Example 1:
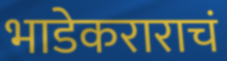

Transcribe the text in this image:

भाडेकराराचं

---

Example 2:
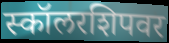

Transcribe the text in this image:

स्कॉलरशिपवर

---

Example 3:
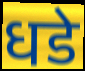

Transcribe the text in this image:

धडे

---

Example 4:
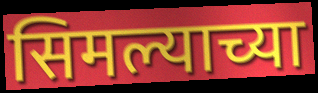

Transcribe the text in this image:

सिमल्याच्या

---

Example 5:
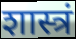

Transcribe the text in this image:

शास्त्रं